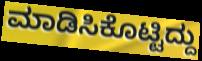
ಮಾಡಿಸಿಕೊಟ್ಟಿದ್ದು